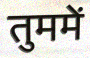
तुममें